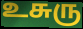
உசுரு